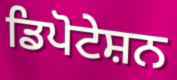
ਡਿਪੋਟੇਸ਼ਨ